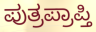
ಪುತ್ರಪ್ರಾಪ್ತಿ